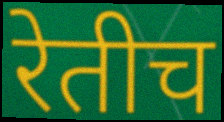
रेतीच